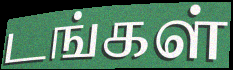
டங்கள்